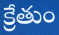
క్రేతుం